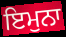
ਇਮੁਨਾ